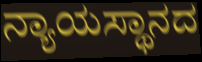
ನ್ಯಾಯಸ್ಥಾನದ